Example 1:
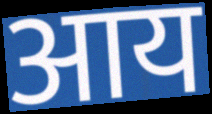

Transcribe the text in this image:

आय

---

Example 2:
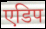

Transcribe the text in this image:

एडिप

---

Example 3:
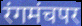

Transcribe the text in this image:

रंगमंचपर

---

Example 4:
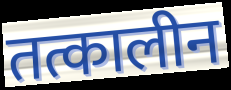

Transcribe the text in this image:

तत्कालीन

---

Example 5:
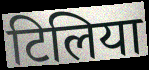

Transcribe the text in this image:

टिलिया